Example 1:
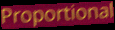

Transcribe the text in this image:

Proportional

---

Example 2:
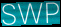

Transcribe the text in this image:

SWP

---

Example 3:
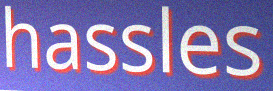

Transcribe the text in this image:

hassles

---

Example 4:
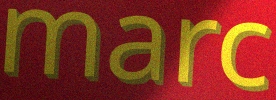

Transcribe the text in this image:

marc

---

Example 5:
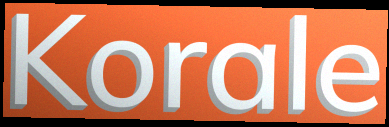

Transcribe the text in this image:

Korale